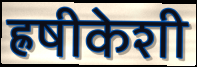
ह्रषीकेशी